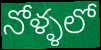
నోళ్ళలో